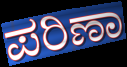
ಪರಿಣಾ